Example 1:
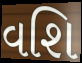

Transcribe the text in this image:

વશિ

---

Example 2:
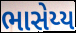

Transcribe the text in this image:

ભાસેય્ય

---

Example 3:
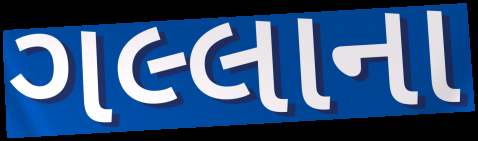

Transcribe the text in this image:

ગલ્લાના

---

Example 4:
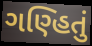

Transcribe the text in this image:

ગણ્હિતું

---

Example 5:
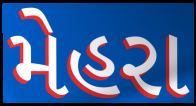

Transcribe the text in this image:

મેહરા